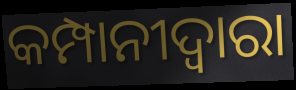
କମ୍ପାନୀଦ୍ୱାରା